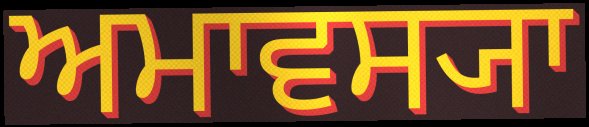
ਅਮਾਵਸ੍ਯਾ